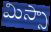
మిస్సా